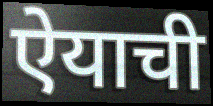
ऐयाची